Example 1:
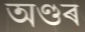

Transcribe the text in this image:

অণ্ডৰ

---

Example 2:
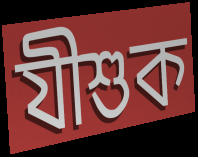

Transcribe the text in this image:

যীশুক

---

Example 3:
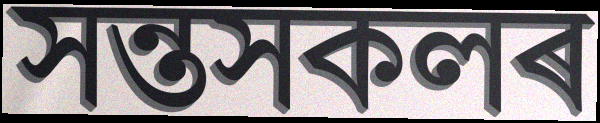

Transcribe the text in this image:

সন্তসকলৰ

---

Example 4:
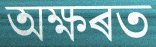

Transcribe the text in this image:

অক্ষৰত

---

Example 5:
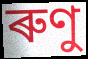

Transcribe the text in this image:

ৰুণু